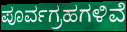
ಪೂರ್ವಗ್ರಹಗಳಿವೆ